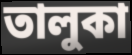
তালুকা